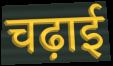
चढ़ाई